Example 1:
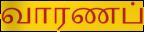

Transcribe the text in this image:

வாரணப்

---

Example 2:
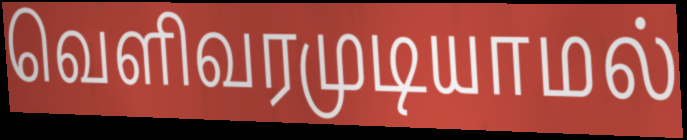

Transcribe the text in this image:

வெளிவரமுடியாமல்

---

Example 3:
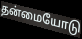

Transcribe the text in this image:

தன்மையோடு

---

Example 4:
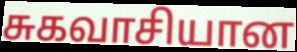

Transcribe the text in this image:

சுகவாசியான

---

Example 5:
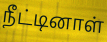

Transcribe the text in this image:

நீட்டினாள்